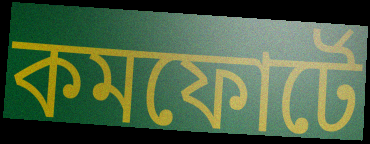
কমফোর্টে